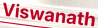
Viswanath